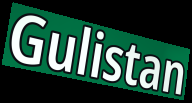
Gulistan